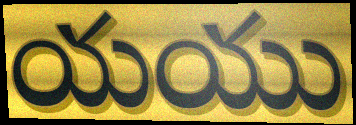
యయు